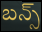
బన్స్